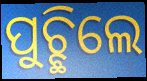
ପୁଚ୍ଛିଲେ